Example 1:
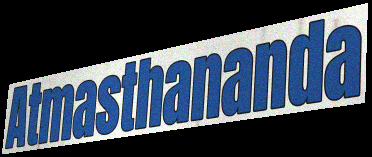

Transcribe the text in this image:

Atmasthananda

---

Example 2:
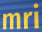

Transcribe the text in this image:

mri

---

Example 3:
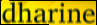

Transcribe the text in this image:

dharine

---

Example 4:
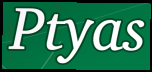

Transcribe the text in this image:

Ptyas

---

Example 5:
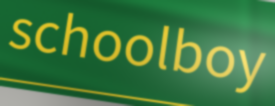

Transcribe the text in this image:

schoolboy